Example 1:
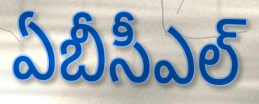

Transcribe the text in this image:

ఏబీసీఎల్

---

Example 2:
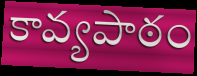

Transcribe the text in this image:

కావ్యపాఠం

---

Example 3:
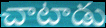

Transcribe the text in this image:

చాటాడు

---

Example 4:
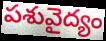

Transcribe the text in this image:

పశువైద్యం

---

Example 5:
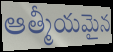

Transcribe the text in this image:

ఆత్మీయమైన